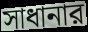
সাধানার